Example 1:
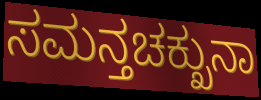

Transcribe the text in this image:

ಸಮನ್ತಚಕ್ಖುನಾ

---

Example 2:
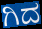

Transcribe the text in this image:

ಗಿದ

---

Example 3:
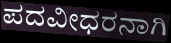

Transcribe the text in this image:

ಪದವೀಧರನಾಗಿ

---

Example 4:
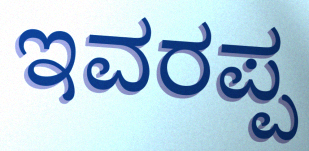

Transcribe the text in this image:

ಇವರಪ್ಪ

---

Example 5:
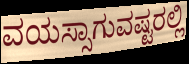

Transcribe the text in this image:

ವಯಸ್ಸಾಗುವಷ್ಟರಲ್ಲಿ